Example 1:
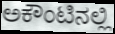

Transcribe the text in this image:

ಅಕೌಂಟಿನಲ್ಲಿ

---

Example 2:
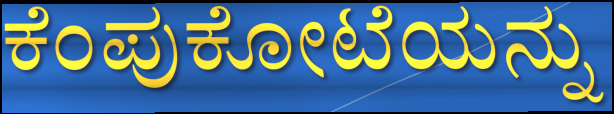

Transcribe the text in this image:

ಕೆಂಪುಕೋಟೆಯನ್ನು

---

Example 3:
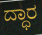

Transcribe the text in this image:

ದ್ಧಾರ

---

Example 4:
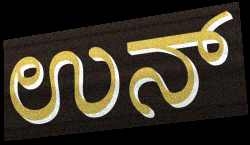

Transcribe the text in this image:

ಉನ್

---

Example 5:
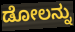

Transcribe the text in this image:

ಡೋಲನ್ನು